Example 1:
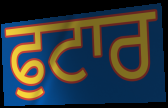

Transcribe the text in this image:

ਫੁਟਾਰ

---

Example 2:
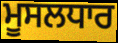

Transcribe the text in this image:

ਮੂਸਲਧਾਰ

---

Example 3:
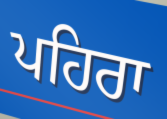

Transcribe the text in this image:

ਪਹਿਰਾ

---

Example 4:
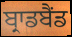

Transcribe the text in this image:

ਬ੍ਰਾਡਬੈਂਡ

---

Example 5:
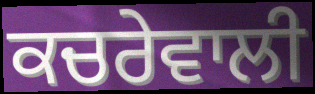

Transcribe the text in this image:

ਕਚਰੇਵਾਲੀ